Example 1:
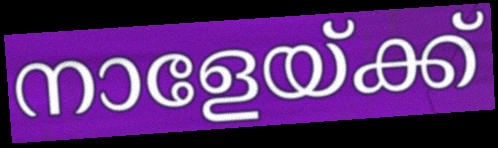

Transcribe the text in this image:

നാളേയ്ക്ക്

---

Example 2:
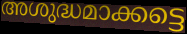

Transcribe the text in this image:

അശുദ്ധമാക്കട്ടെ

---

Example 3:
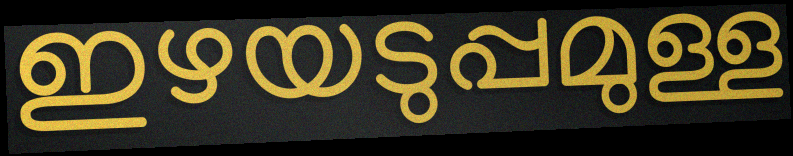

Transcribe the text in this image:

ഇഴയടുപ്പമുള്ള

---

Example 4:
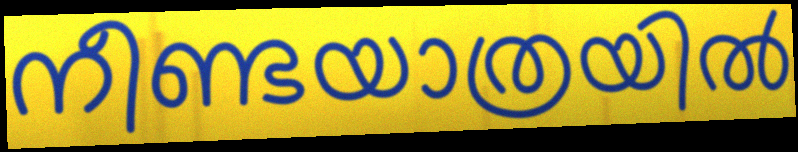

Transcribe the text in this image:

നീണ്ടയാത്രയിൽ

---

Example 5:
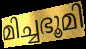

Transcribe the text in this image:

മിച്ചഭൂമി